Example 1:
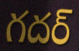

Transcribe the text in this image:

గదర్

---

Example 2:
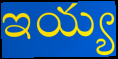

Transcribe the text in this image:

ఇయ్య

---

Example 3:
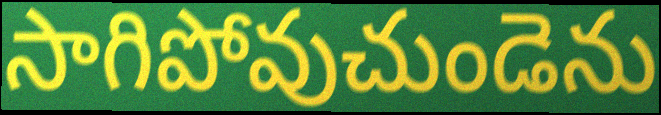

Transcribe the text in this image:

సాగిపోవుచుండెను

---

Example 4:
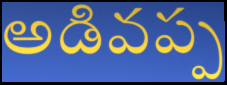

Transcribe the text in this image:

అడివప్ప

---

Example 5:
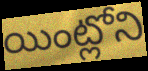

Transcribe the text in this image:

యింట్లోని